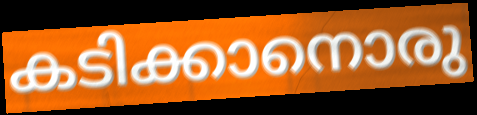
കടിക്കാനൊരു